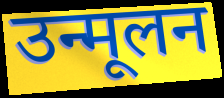
उन्‍मूलन